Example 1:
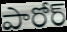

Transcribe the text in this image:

పారోర్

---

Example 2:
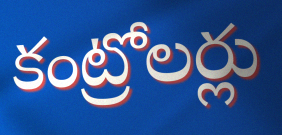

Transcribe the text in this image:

కంట్రోలర్లు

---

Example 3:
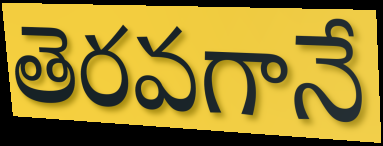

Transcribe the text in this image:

తెరవగానే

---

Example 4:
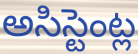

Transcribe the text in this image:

అసిస్టెంట్ల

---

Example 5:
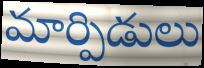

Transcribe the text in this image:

మార్పిడులు